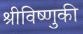
श्रीविष्णुकी